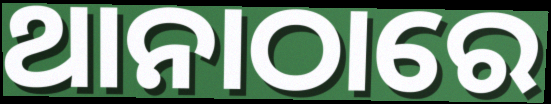
ଥାନାଠାରେ